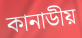
কানাডীয়